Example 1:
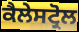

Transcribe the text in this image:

ਕੈਲੇਸਟ੍ਰੋਲ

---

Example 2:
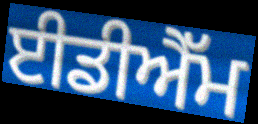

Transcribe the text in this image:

ਈਡੀਐੱਮ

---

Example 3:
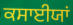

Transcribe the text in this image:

ਕਸਾਈਯਾਂ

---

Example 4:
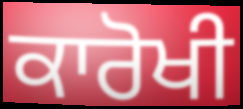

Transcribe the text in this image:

ਕਾਰੋਖੀ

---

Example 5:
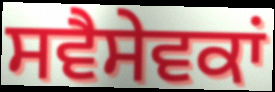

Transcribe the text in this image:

ਸਵੈਸੇਵਕਾਂ